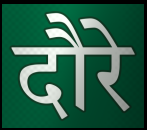
दौरे